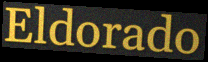
Eldorado